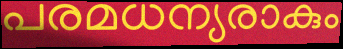
പരമധന്യരാകും